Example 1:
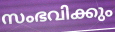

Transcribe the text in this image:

സംഭവിക്കും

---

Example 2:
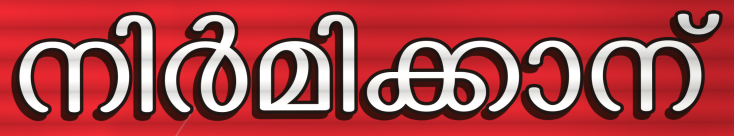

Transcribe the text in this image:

നിർമിക്കാന്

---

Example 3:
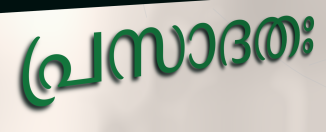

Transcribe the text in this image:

പ്രസാദതഃ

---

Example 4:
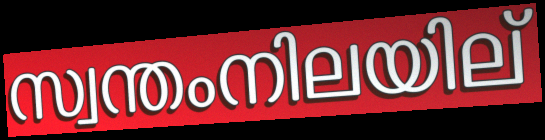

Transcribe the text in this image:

സ്വന്തംനിലയില്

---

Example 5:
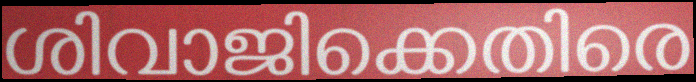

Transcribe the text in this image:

ശിവാജിക്കെതിരെ